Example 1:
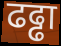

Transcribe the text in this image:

ढढ्ढा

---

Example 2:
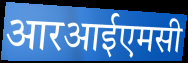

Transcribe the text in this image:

आरआईएमसी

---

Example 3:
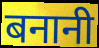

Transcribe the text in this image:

बनानी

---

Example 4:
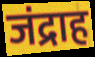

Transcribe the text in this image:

जंद्राह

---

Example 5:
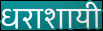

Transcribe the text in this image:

धराशायी